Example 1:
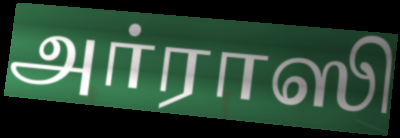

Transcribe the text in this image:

அர்ராஸி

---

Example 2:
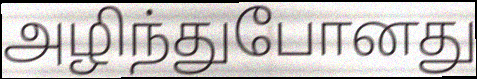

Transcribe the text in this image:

அழிந்துபோனது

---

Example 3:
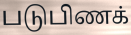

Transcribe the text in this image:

படுபிணக்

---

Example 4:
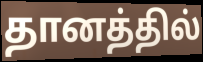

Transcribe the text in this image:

தானத்தில்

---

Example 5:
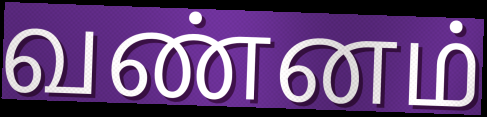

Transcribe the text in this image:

வண்னம்